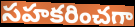
సహకరించగా